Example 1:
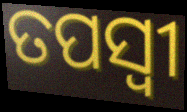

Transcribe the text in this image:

ତପସ୍ବୀ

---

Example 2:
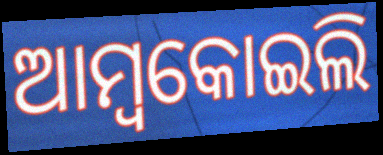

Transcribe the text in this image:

ଆମ୍ବକୋଇଲି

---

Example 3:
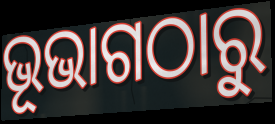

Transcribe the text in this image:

ଭୂଭାଗଠାରୁ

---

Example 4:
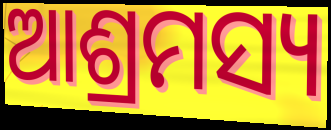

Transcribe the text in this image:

ଆଶ୍ରମସ୍ୟ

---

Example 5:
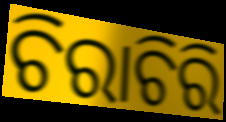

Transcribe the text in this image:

ଚିରାଚିରି